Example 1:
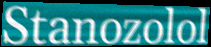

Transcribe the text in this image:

Stanozolol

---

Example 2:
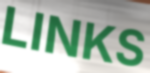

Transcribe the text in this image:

LINKS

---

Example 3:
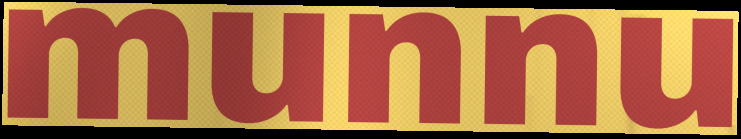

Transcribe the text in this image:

munnu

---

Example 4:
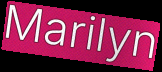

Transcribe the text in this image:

Marilyn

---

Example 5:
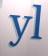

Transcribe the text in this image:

yl